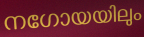
നഗോയയിലും